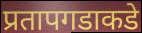
प्रतापगडाकडे